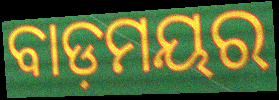
ବାଡ଼ମୟର